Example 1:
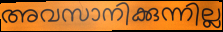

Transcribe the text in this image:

അവസാനിക്കുന്നില്ല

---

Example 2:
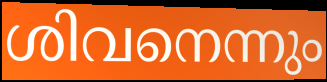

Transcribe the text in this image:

ശിവനെന്നും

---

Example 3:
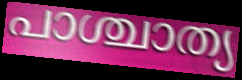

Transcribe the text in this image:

പാശ്ചാത്യ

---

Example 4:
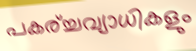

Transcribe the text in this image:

പകര്ച്ചവ്യാധികളും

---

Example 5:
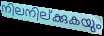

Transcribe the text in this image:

നിലനില്ക്കുകയും